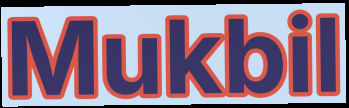
Mukbil